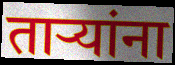
तार्‍यांना